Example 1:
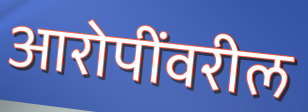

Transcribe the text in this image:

आरोपींवरील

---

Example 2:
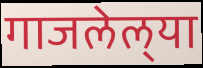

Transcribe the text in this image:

गाजलेल्या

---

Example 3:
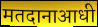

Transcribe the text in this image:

मतदानाआधी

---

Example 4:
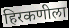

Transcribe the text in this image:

हिरकणीला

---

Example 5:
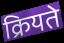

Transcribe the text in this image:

क्रियते